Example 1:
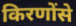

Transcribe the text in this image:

किरणोंसे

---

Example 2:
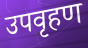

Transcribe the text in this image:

उपवृहण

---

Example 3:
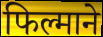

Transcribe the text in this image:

फिल्माने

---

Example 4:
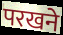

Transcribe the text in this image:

परखने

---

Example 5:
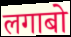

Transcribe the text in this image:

लगाबो